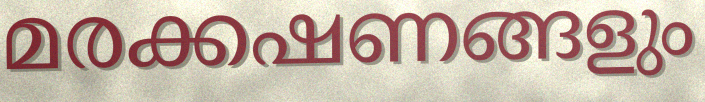
മരക്കഷണങ്ങളും